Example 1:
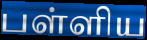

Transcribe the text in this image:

பள்ளிய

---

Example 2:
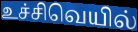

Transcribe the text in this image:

உச்சிவெயில்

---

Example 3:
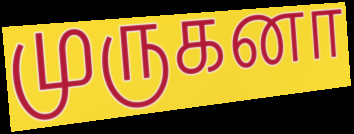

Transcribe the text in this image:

முருகனா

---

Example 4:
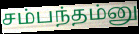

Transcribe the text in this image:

சம்பந்தம்னு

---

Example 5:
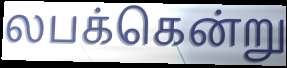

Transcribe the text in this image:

லபக்கென்று